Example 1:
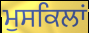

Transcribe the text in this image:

ਮੁਸਕਿਲਾਂ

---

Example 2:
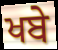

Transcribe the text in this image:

ਖਬੇ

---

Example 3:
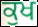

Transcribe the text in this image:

ਕੁਖ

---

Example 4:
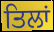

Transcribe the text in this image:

ਤਿਲਾਂ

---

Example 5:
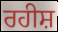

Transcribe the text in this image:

ਰਹੀਸ਼